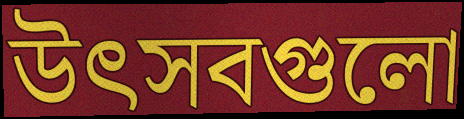
উৎসবগুলো